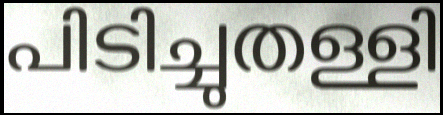
പിടിച്ചുതള്ളി